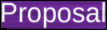
Proposal